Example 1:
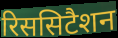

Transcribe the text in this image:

रिससिटैशन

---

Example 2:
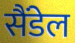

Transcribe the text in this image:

सैंडेल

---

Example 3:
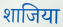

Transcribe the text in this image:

शाजिया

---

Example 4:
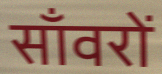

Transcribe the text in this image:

साँवरों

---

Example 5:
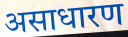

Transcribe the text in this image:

असाधारण